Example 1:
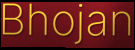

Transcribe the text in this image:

Bhojan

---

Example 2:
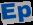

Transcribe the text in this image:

Ep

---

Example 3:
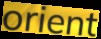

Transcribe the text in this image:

orient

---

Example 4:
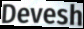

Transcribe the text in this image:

Devesh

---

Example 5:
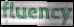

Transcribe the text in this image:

fluency